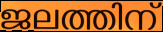
ജലത്തിന്